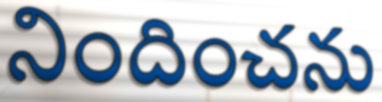
నిందించను